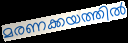
മരണക്കയത്തിൽ